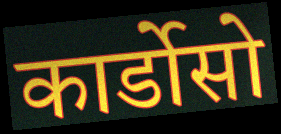
कार्डोसो